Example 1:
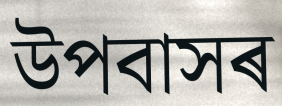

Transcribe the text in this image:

উপবাসৰ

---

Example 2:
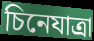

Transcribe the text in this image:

চিনেযাত্ৰা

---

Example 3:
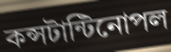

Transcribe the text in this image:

কন্সটান্টিনোপল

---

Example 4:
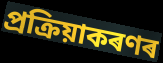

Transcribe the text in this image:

প্ৰক্ৰিয়াকৰণৰ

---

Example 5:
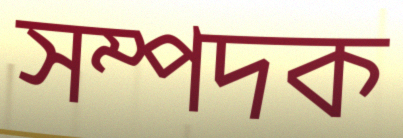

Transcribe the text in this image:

সম্পদক